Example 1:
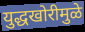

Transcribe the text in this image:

युद्धखोरीमुळे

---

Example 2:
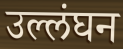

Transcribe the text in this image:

उल्लंघन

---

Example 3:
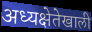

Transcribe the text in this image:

अध्यक्षेतेखाली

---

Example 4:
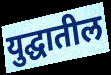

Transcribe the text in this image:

युद्घातील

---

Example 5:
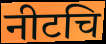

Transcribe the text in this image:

नीटचि